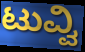
ಟುವ್ವಿ